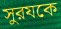
সুরযকে